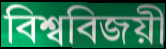
বিশ্ববিজয়ী